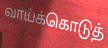
வாய்க்கொடுத்